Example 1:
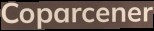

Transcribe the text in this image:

Coparcener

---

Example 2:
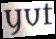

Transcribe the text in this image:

yut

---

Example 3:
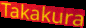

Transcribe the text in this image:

Takakura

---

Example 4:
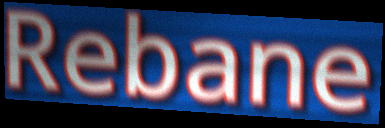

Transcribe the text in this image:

Rebane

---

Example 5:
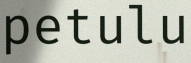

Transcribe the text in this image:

petulu